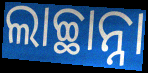
ଲାଚ୍ଛାନ୍ନା